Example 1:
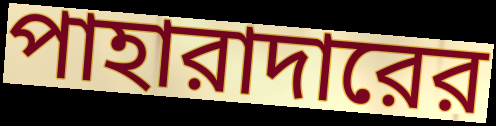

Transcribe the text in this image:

পাহারাদারের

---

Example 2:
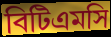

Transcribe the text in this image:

বিটিএমসি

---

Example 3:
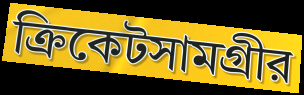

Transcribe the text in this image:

ক্রিকেটসামগ্রীর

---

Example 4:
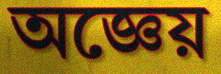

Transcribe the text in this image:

অজ্ঞেয়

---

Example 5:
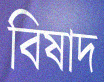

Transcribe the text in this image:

বিষাদ